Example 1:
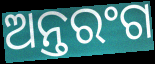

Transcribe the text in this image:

ଅନ୍ତରଂଗ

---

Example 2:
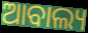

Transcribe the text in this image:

ଆବାଲ୍ୟ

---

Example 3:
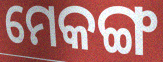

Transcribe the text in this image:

ମେକଙ୍ଗ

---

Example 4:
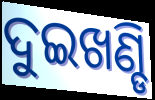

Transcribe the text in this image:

ଦୁଇଖଣ୍ଡି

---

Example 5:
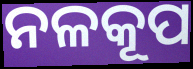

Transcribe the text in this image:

ନଳକୂପ